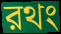
রথং